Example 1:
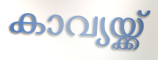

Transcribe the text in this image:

കാവ്യയ്ക്ക്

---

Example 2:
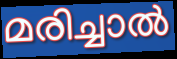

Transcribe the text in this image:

മരിച്ചാൽ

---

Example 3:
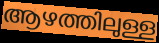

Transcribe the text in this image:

ആഴത്തിലുള്ള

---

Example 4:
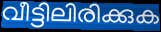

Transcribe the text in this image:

വീട്ടിലിരിക്കുക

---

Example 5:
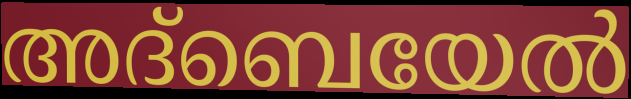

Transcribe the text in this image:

അദ്ബെയേൽ